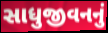
સાધુજીવનનું